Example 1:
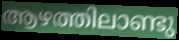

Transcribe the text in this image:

ആഴത്തിലാണ്ടു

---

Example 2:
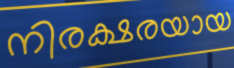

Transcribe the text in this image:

നിരക്ഷരയായ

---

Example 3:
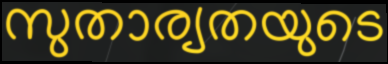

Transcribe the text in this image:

സുതാര്യതയുടെ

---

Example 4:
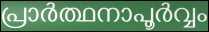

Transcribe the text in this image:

പ്രാർത്ഥനാപൂർവ്വം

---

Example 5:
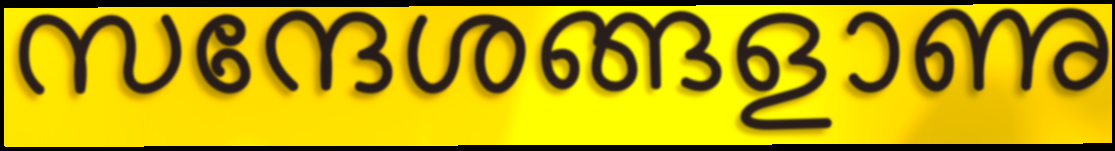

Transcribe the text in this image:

സന്ദേശങ്ങളാണു